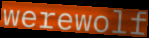
werewolf